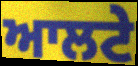
ਆਲਟੇ